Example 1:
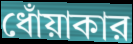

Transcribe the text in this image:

ধোঁয়াকার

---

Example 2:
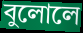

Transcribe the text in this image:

বুলোলে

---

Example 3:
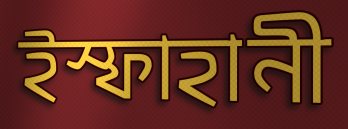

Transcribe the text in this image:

ইস্ফাহানী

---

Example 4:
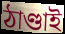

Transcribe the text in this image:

ঠাণ্ডাই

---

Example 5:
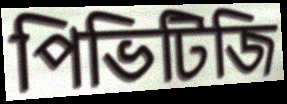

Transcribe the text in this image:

পিভিটিজি